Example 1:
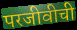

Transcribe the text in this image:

परजीवीची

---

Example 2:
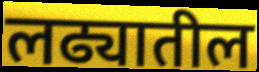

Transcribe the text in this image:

लढ्यातील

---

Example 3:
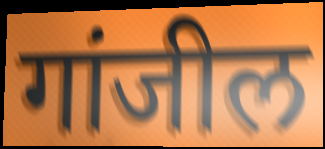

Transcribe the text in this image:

गांजील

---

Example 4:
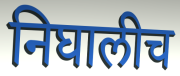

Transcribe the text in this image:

निघालीच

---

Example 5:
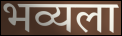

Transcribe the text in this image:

भव्यला